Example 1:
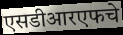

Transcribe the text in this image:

एसडीआरएफचे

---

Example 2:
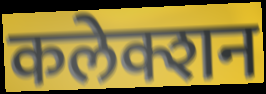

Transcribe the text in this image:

कलेक्शन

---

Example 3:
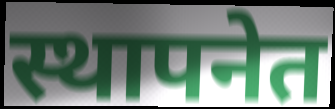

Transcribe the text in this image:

स्थापनेत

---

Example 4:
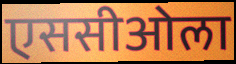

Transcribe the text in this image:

एससीओला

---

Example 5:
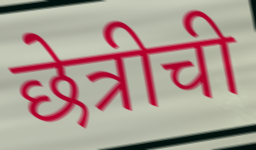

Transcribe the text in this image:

छेत्रीची